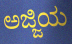
ಅಜ್ಜಿಯ